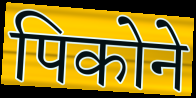
पिकोने